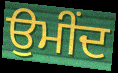
ਉਮੀਂਦ